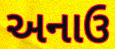
અનાઉ